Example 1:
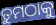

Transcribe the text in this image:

ତୁମଠାକୁ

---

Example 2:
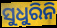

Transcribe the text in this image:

ସୁଧୁରିନି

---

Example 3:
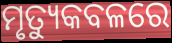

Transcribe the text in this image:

ମୃତ୍ୟୁକବଳରେ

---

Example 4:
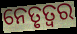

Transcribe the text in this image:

ନେତୃତ୍ବର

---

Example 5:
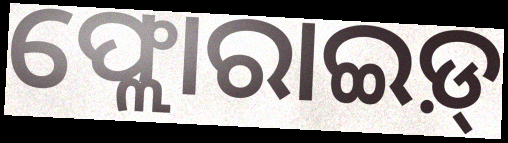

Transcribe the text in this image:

ଫ୍ଲୋରାଇଡ଼୍